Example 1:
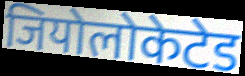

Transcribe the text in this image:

जियोलोकेटेड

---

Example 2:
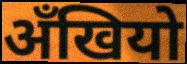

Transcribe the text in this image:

अँखियो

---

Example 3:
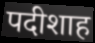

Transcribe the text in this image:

पदीशाह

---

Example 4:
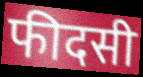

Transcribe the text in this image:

फीदसी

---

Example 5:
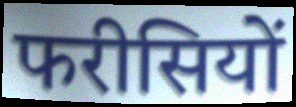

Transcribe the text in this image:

फरीसियों